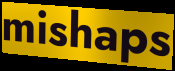
mishaps